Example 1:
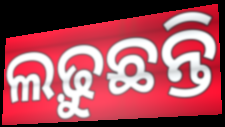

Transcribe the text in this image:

ଲଢ଼ୁଛନ୍ତି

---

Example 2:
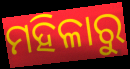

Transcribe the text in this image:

ମହିଳାରୁ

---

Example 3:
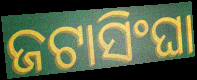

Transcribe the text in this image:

ଜଟାସିଂଘା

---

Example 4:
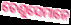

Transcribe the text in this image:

ତେଣୁସେମାନେ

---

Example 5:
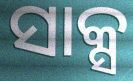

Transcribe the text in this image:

ସାକ୍ସ